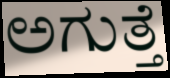
ಅಗುತ್ತೆ